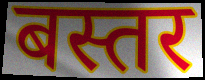
बस्तर